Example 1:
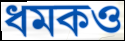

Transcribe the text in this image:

ধমকও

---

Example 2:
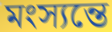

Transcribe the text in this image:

মংস্যন্তে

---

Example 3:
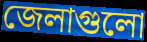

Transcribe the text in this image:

জেলাগুলো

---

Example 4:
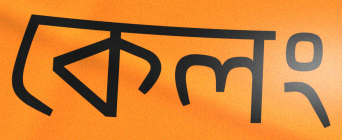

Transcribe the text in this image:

কেলং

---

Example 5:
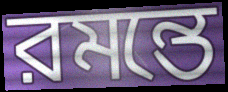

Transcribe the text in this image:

রমন্তে